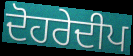
ਦੋਹਰੇਦੀਪ